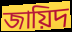
জায়িদ